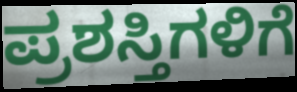
ಪ್ರಶಸ್ತಿಗಳಿಗೆ